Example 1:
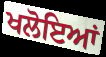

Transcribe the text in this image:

ਖਲੋਇਆਂ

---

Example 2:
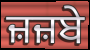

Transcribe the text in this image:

ਜ਼ਜ਼ਬੇ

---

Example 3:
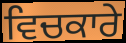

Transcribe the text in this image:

ਵਿਚਕਾਰੇ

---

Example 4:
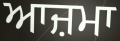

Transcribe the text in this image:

ਆਜ਼ਮਾ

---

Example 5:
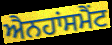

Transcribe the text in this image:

ਐਨਹਾਂਸਮੈਂਟ